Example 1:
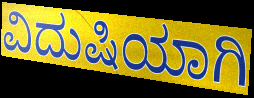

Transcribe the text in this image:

ವಿದುಷಿಯಾಗಿ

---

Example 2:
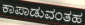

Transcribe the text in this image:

ಕಾಪಾಡುವಂತಹ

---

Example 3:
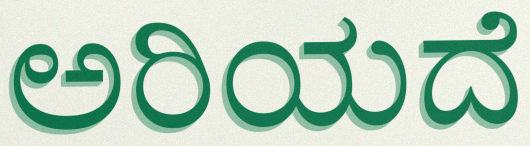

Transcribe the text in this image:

ಅರಿಯದೆ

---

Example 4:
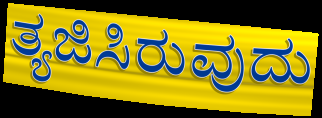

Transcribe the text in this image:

ತ್ಯಜಿಸಿರುವುದು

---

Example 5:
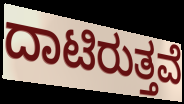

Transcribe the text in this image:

ದಾಟಿರುತ್ತವೆ